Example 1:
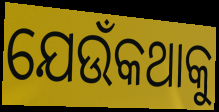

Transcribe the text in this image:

ଯେଉଁକଥାକୁ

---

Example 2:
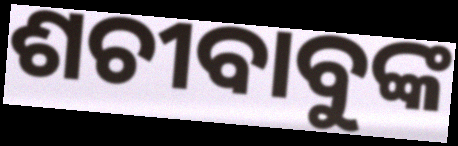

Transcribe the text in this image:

ଶଚୀବାବୁଙ୍କ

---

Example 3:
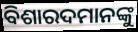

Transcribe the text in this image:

ବିଶାରଦମାନଙ୍କୁ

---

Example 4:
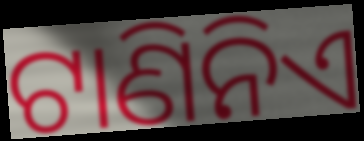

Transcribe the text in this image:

ଟାଣିନିଏ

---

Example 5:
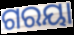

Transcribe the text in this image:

ଗରୟା